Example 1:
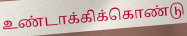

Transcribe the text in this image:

உண்டாக்கிக்கொண்டு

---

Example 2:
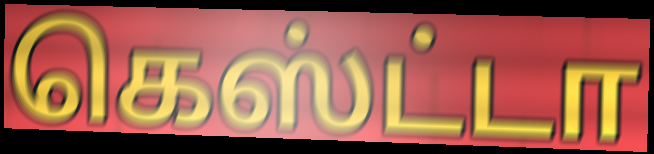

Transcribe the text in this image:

கெஸ்ட்டா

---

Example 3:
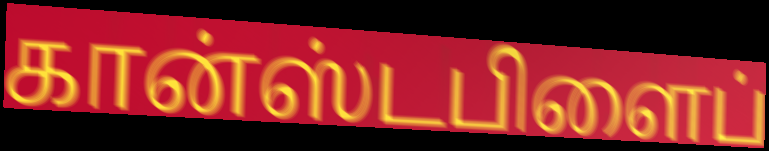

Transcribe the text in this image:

கான்ஸ்டபிளைப்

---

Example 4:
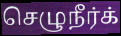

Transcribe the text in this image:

செழுநீர்க்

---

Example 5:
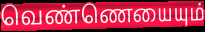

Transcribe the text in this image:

வெண்ணெயையும்